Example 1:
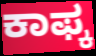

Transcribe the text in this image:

ಕಾಫ್ಕ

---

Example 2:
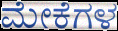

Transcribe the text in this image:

ಮೇಕೆಗಳ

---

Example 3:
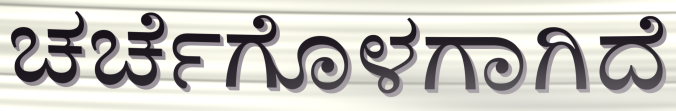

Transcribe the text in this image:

ಚರ್ಚೆಗೊಳಗಾಗಿದೆ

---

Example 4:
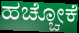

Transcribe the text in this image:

ಹಚ್ಚೋಕೆ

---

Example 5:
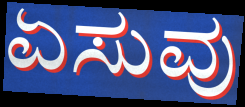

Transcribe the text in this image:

ಏಸುವು